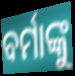
ବର୍ମାଙ୍କୁ